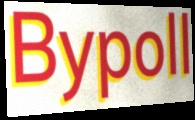
Bypoll